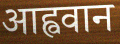
आह्ववान